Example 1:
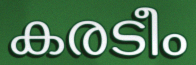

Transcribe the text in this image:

കരടീം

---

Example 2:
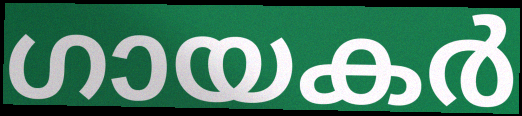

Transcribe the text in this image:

ഗായകർ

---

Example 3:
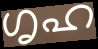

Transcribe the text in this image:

ഗൃഹ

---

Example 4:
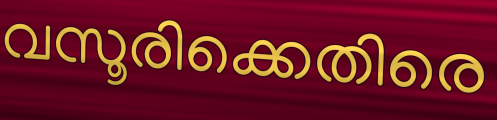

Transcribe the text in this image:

വസൂരിക്കെതിരെ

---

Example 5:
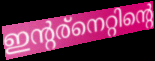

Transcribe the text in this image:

ഇന്റര്നെറ്റിന്റെ